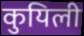
कुयिली